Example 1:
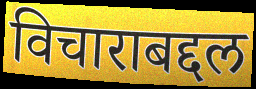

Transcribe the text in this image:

विचाराबद्दल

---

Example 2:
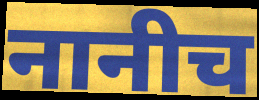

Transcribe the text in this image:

नानीच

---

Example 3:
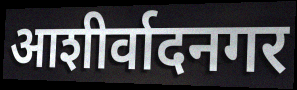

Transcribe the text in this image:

आशीर्वादनगर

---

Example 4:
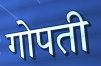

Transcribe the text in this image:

गोपती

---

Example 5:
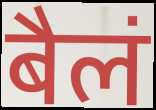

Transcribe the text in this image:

बैलं